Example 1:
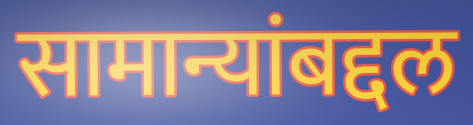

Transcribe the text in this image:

सामान्यांबद्दल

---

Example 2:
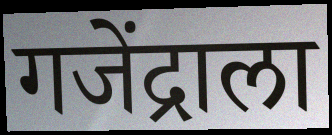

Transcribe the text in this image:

गजेंद्राला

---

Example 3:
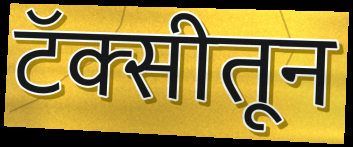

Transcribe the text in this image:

टॅक्‍सीतून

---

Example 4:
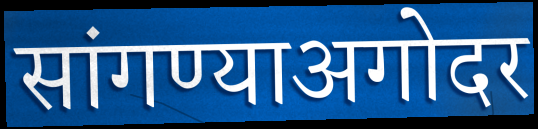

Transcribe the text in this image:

सांगण्याअगोदर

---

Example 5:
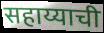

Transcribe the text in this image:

सहाय्याची